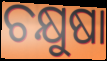
ଚକ୍ଷୁଷା